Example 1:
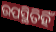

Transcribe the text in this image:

ଉପସ୍ଥିତିହିଁ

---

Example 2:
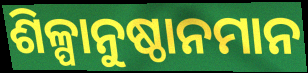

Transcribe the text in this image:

ଶିଳ୍ପାନୁଷ୍ଠାନମାନ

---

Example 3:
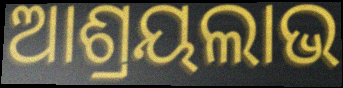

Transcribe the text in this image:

ଆଶ୍ରୟଲାଭ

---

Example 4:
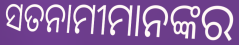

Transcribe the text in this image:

ସତନାମୀମାନଙ୍କର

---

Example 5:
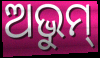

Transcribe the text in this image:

ଅଭୁମ୍